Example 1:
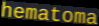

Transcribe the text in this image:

hematoma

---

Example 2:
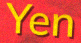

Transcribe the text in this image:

Yen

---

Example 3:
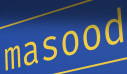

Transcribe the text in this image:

masood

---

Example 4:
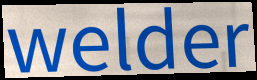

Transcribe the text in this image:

welder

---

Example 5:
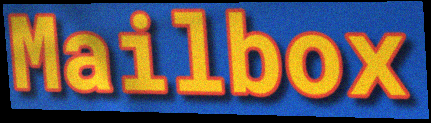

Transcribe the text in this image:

Mailbox